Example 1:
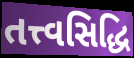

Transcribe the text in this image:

તત્ત્વસિદ્ધિ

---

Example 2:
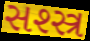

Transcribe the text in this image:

સશ્સ્ત્ર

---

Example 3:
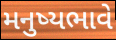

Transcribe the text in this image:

મનુષ્યભાવે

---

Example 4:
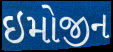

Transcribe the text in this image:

ઇમોજીન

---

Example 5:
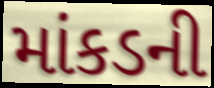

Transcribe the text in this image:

માંકડની